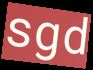
sgd